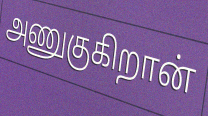
அணுகுகிறான்